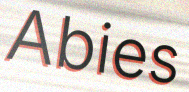
Abies